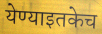
येण्याइतकेच